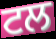
ਟਲ